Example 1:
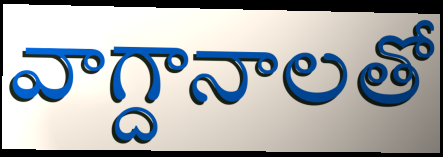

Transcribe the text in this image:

వాగ్దానాలతో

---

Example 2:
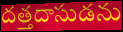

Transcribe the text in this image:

దత్తదాసుడను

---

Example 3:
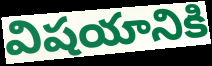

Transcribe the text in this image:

విషయానికి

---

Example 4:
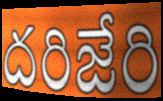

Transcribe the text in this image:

దరిజేరి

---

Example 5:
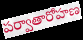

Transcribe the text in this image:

పర్వాతారోహణ